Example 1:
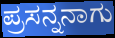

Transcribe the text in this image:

ಪ್ರಸನ್ನನಾಗು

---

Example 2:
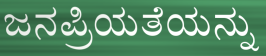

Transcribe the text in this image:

ಜನಪ್ರಿಯತೆಯನ್ನು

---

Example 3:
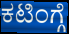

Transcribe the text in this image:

ಕಟಿಂಗ್ಗೆ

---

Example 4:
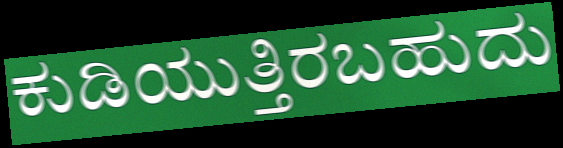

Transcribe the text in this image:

ಕುಡಿಯುತ್ತಿರಬಹುದು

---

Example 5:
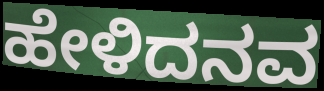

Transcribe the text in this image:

ಹೇಳಿದನವ